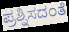
ಪ್ರಶ್ನಿಸದಂತೆ